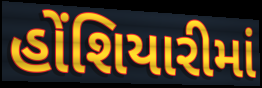
હોંશિયારીમાં